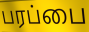
பரப்பை